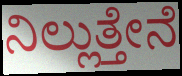
ನಿಲ್ಲುತ್ತೇನೆ